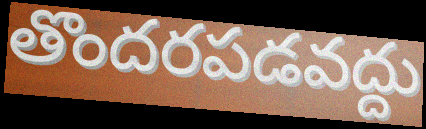
తొందరపడవద్దు